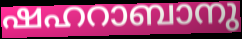
ഷഹറാബാനു